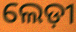
ଲେଡ଼ୀ